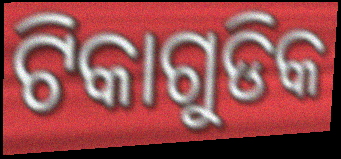
ଟିକାଗୁଡିକ